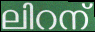
ലിറന്